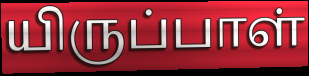
யிருப்பாள்